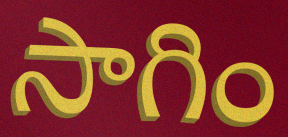
సాగిం